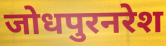
जोधपुरनरेश